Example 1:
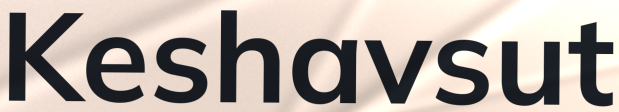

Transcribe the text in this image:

Keshavsut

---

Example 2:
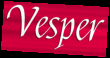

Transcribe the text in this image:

Vesper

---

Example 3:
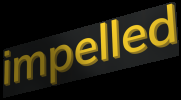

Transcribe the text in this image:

impelled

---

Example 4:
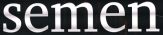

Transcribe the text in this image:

semen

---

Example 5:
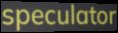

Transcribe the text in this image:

speculator